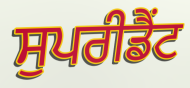
ਸੁਪਰੀਡੈਂਟ